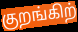
குறங்கிற்